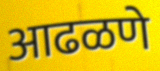
आढळणे